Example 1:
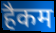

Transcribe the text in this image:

हैकम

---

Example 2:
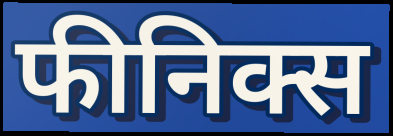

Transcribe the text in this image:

फीनिक्स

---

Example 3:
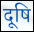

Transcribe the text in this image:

दूषि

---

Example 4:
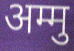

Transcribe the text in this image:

अम्मु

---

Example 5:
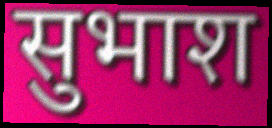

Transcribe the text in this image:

सुभाश